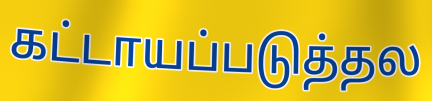
கட்டாயப்படுத்தல